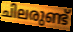
ചിലരുണ്ട്